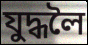
যুদ্ধলৈ